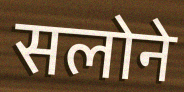
सलोने